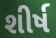
શીર્ષ